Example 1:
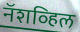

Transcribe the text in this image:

नॅशव्हिल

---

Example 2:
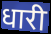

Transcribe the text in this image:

धारी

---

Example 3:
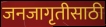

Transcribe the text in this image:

जनजागृतीसाठी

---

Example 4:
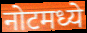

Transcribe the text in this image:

नोटमध्ये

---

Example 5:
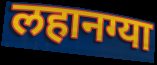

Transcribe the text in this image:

लहानग्या